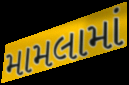
મામલામાં